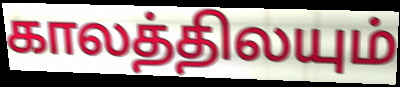
காலத்திலயும்